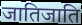
जातिजाति